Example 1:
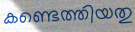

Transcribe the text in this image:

കണ്ടെത്തിയതു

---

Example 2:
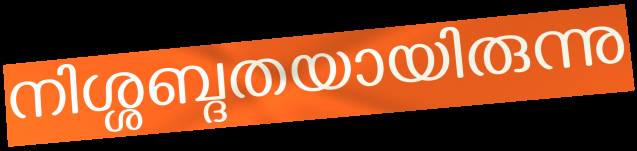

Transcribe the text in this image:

നിശ്ശബ്ദതയായിരുന്നു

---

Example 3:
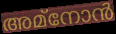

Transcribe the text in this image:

അമ്നോൻ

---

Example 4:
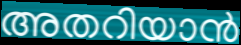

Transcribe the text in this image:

അതറിയാൻ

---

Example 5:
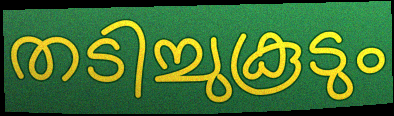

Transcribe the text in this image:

തടിച്ചുകൂടും